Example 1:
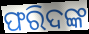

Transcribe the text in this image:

ଫରିଦଙ୍କ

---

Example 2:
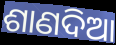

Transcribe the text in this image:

ଶାଣଦିଆ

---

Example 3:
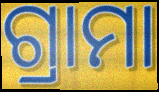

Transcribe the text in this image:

ଗ୍ରାମା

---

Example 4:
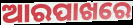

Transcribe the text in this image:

ଆରପାଖରେ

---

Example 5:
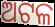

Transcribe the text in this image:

ଅଟଳ